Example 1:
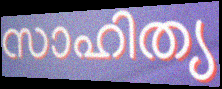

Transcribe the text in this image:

സാഹിത്യ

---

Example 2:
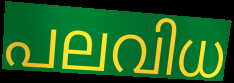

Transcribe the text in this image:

പലവിധ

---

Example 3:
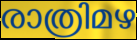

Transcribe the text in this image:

രാത്രിമഴ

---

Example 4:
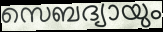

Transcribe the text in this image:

സെബദ്യായും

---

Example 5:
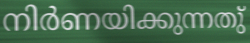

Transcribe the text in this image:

നിർണയിക്കുന്നതു്